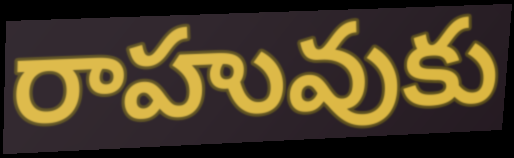
రాహువుకు